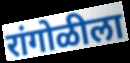
रांगोळीला